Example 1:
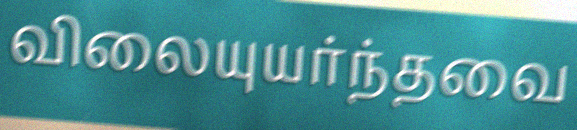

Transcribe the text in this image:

விலையுயர்ந்தவை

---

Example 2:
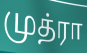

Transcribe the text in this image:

முத்ரா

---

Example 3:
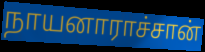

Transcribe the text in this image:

நாயனாராச்சான்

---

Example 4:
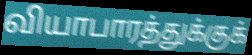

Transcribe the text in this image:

வியாபாரத்துக்குக்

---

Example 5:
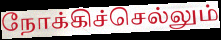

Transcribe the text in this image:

நோக்கிச்செல்லும்